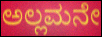
ಅಲ್ಲಮನೇ